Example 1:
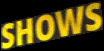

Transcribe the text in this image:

SHOWS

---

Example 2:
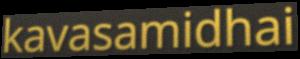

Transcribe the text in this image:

kavasamidhai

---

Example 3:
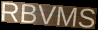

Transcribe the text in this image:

RBVMS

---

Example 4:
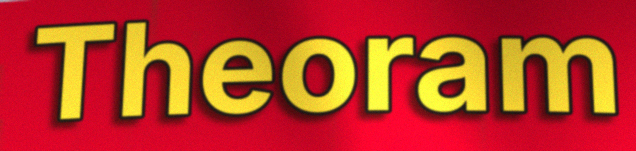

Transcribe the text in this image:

Theoram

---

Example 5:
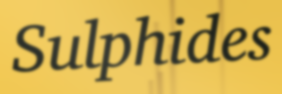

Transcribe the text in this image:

Sulphides